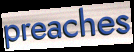
preaches